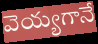
వెయ్యగానే